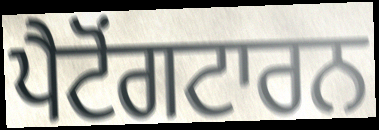
ਪੈਟੋਂਗਟਾਰਨ